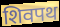
शिवपथ